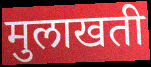
मुलाखती